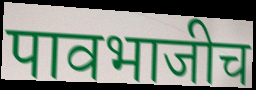
पावभाजीच